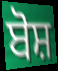
ਬੋਸ਼